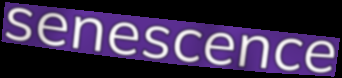
senescence